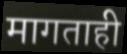
मागताही